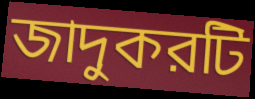
জাদুকরটি